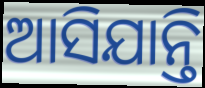
ଆସିଯାନ୍ତି